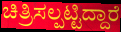
ಚಿತ್ರಿಸಲ್ಪಟ್ಟಿದ್ದಾರೆ